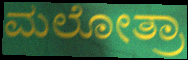
ಮಲೋತ್ರಾ